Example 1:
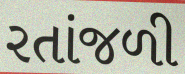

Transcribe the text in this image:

રતાંજળી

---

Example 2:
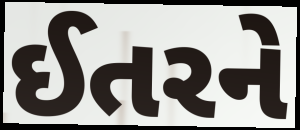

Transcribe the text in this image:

ઈતરને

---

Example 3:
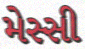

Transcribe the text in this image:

મેસ્સી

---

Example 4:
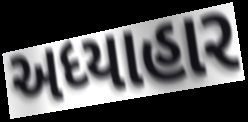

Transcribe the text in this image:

અધ્યાહાર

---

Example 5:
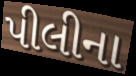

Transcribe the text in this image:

પીલીના